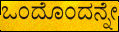
ಒಂದೊಂದನ್ನೇ